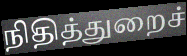
நிதித்துறைச்